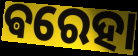
ଵରେହା